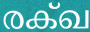
രക്ഖ